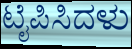
ಟೈಪಿಸಿದಳು